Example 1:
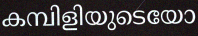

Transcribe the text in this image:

കമ്പിളിയുടെയോ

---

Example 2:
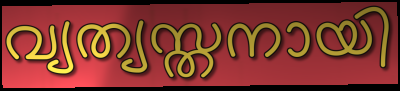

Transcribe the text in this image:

വ്യത്യസ്തനായി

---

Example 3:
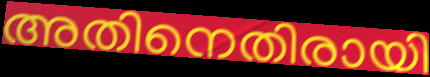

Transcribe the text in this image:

അതിനെതിരായി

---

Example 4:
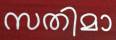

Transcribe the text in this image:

സതിമാ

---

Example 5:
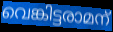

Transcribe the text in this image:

വെങ്കിട്ടരാമന്